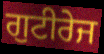
ਗੁਟੀਰੇਜ